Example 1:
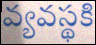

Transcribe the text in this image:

వ్యవస్థకి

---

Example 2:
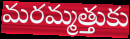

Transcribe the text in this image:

మరమ్మత్తుకు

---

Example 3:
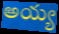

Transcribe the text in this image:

అయ్య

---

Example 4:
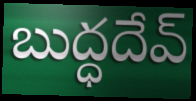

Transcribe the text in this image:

బుద్ధదేవ్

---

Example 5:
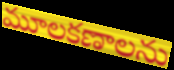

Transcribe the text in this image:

మూలకణాలను